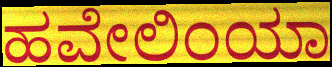
ಹವೇಲಿಂಯಾ